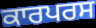
ਕਾਰਪਰਸ